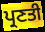
ਪ੍ਰਣਤੀ